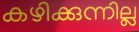
കഴിക്കുന്നില്ല